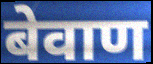
बेवाण